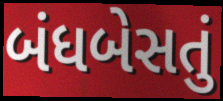
બંધબેસતું